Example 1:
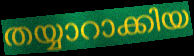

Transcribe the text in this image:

തയ്യാറാക്കിയ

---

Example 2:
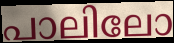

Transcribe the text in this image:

പാലിലോ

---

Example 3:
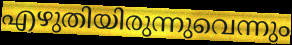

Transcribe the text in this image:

എഴുതിയിരുന്നുവെന്നും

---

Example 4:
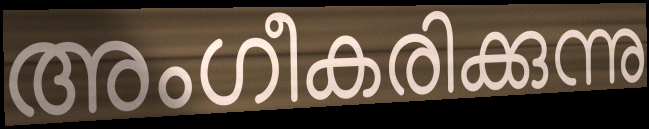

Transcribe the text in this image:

അംഗീകരിക്കുന്നു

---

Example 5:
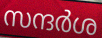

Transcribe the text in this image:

സന്ദർശ